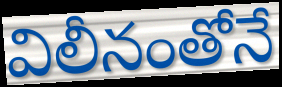
విలీనంతోనే